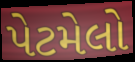
પેટમેલો